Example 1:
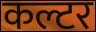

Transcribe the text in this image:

कल्टर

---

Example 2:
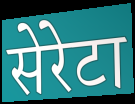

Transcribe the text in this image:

सेरेटा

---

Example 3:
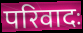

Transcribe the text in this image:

परिवादः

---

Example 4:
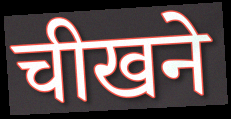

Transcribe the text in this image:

चीखने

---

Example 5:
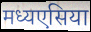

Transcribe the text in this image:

मध्यएसिया